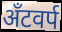
अँटवर्प